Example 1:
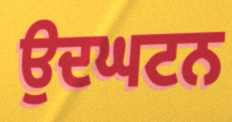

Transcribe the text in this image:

ਉਦਘਟਨ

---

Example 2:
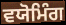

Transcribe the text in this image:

ਵਯੋਮਿੰਗ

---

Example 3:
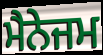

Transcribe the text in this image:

ਮੈਨੇਜਮ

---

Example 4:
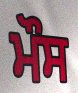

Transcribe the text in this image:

ਮੌਸ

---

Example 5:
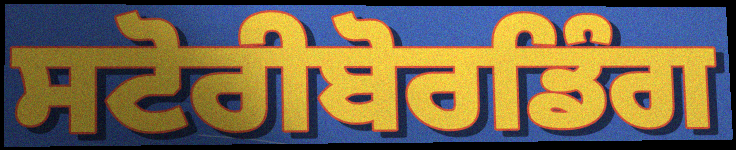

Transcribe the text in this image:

ਸਟੋਰੀਬੋਰਡਿੰਗ